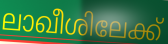
ലാഖീശിലേക്ക്